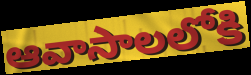
ఆవాసాలలోకి